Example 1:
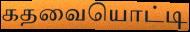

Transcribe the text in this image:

கதவையொட்டி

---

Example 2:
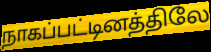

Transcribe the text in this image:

நாகப்பட்டினத்திலே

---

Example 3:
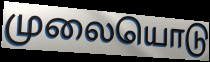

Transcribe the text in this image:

முலையொடு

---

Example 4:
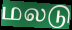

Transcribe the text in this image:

மலடு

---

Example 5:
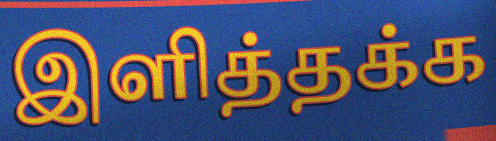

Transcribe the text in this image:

இளித்தக்க